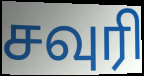
சவுரி